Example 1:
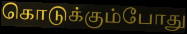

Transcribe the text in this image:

கொடுக்கும்போது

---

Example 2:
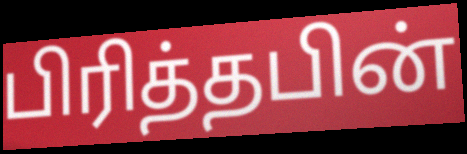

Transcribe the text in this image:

பிரித்தபின்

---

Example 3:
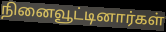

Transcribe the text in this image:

நினைவூட்டினார்கள்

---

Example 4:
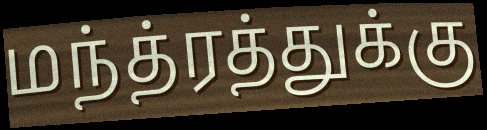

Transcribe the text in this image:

மந்த்ரத்துக்கு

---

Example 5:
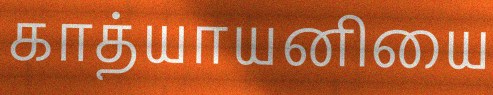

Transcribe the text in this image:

காத்யாயனியை